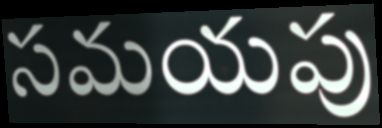
సమయపు